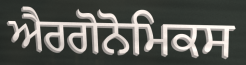
ਐਰਗੋਨੋਮਿਕਸ